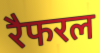
रैफरल